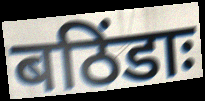
बठिंडाः